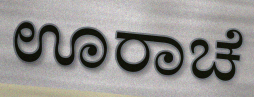
ಊರಾಚೆ